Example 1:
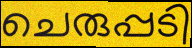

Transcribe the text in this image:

ചെരുപ്പടി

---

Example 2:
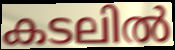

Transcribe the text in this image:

കടലിൽ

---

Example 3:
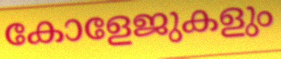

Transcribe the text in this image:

കോളേജുകളും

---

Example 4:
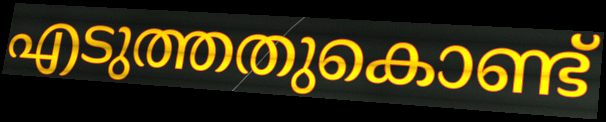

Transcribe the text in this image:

എടുത്തതുകൊണ്ട്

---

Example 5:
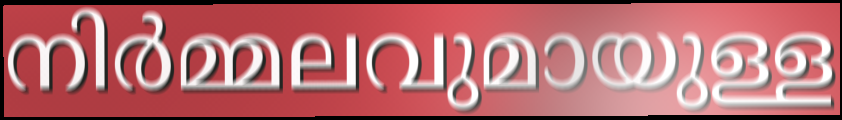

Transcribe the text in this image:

നിർമ്മലവുമായുള്ള